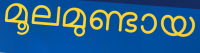
മൂലമുണ്ടായ